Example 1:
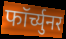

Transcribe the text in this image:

फॉर्च्युनर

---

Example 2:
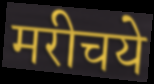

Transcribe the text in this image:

मरीचये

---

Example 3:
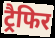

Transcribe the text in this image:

ट्रैफिर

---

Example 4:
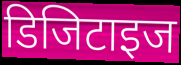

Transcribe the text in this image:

डिजिटाइज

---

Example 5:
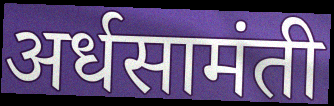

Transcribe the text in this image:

अर्धसामंती